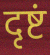
दृष्टं